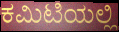
ಕಮಿಟಿಯಲ್ಲಿ